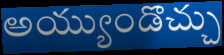
అయ్యుండొచ్చు